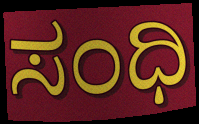
ಸಂಧಿ